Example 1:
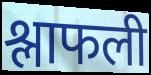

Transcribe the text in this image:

श्लाफली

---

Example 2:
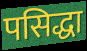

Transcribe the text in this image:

पसिद्धा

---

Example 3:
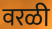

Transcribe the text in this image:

वरळी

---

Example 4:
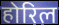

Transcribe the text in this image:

होरिल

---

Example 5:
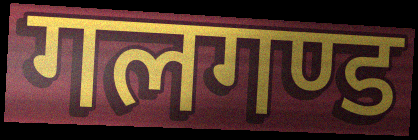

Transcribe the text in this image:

गलगण्ड